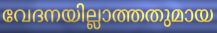
വേദനയില്ലാത്തതുമായ